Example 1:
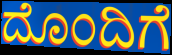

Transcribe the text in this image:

ದೊಂದಿಗೆ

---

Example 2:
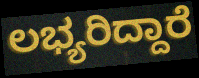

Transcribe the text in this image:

ಲಭ್ಯರಿದ್ದಾರೆ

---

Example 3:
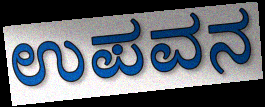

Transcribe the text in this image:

ಉಪವನ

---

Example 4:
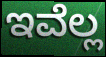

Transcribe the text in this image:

ಇವೆಲ್ಲ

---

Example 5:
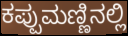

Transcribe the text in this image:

ಕಪ್ಪುಮಣ್ಣಿನಲ್ಲಿ